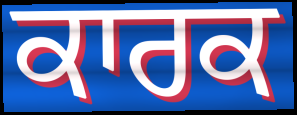
ਕਾਰਕ